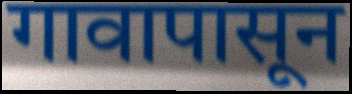
गावापासून